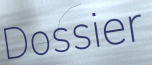
Dossier